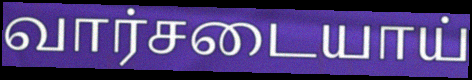
வார்சடையாய்